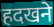
हदखने